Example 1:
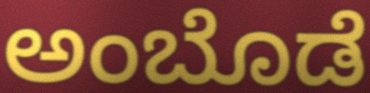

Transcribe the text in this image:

ಅಂಬೊಡೆ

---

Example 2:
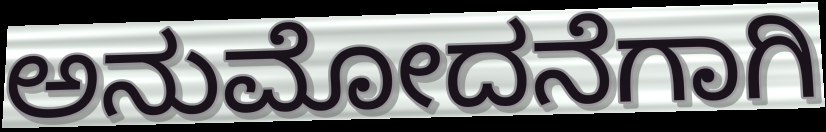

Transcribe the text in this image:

ಅನುಮೋದನೆಗಾಗಿ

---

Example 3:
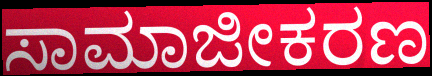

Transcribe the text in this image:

ಸಾಮಾಜೀಕರಣ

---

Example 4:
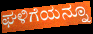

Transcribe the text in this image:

ಘಳಿಗೆಯನ್ನೂ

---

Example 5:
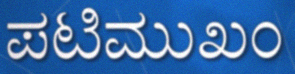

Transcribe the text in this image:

ಪಟಿಮುಖಂ